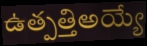
ఉత్పత్తిఅయ్యే